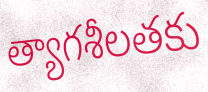
త్యాగశీలతకు